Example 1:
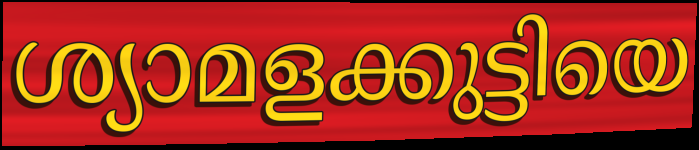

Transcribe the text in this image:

ശ്യാമളക്കുട്ടിയെ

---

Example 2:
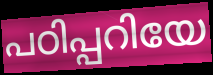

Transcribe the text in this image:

പഠിപ്പറിയേ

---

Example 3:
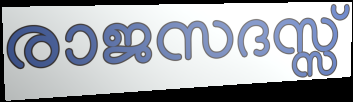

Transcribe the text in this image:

രാജസദസ്സ്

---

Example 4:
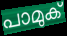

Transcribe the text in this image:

പാമുക്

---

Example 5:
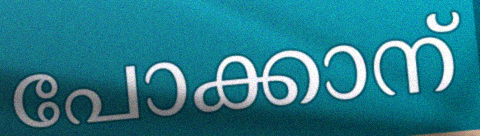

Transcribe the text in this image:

പോക്കാന്